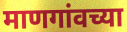
माणगांवच्या